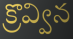
క్రొవ్విన